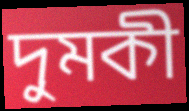
দুমকী